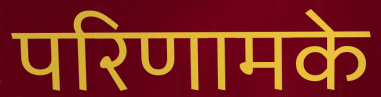
परिणामके